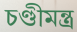
চণ্ডীমন্ত্র